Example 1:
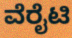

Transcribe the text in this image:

ವೆರೈಟಿ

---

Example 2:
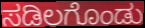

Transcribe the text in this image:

ಸಡಿಲಗೊಂಡು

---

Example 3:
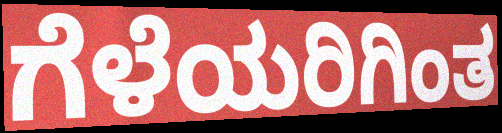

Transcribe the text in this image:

ಗೆಳೆಯರಿಗಿಂತ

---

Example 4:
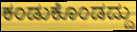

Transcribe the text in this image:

ಕಂಡುಕೊಂಡದ್ದು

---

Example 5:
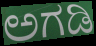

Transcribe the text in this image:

ಅಗಡಿ